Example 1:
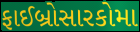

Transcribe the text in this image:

ફાઈબ્રોસારકોમા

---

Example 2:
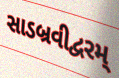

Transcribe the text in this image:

સાડબ્રવીદ્વરમ્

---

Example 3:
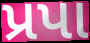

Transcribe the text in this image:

પ્રપા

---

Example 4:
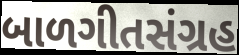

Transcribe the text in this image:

બાળગીતસંગ્રહ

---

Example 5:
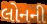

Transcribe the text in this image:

લોનની